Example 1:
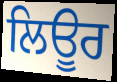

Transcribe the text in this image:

ਲਿਊਰ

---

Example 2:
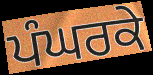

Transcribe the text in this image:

ਪੰਘਰਕੇ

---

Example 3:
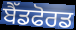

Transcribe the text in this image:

ਬੈੱਡਫੋਰਡ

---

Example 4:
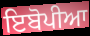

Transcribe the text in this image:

ਇਬੋਪੀਆ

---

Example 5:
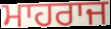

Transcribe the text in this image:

ਮਾਹਰਾਜ